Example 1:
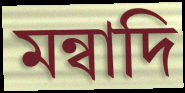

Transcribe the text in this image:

মন্বাদি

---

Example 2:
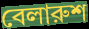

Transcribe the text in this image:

বেলারুশ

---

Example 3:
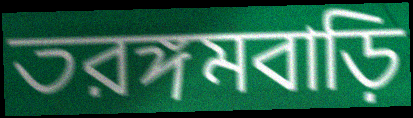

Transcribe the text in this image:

তরঙ্গমবাড়ি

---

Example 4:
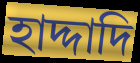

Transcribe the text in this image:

হাদ্দাদি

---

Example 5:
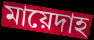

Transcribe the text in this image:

মায়েদাহ